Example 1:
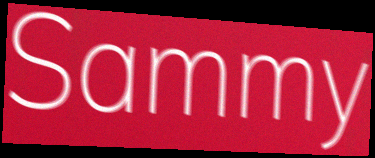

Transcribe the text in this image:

Sammy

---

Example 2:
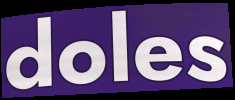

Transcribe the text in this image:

doles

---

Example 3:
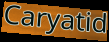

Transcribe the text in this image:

Caryatid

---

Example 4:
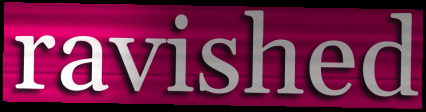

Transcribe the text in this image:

ravished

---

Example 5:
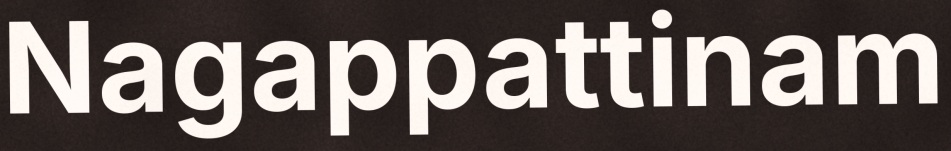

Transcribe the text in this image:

Nagappattinam